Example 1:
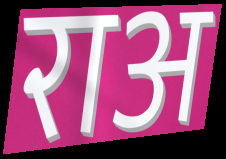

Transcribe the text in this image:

राअ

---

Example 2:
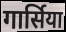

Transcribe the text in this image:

गार्सिया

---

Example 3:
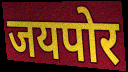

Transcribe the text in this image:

जयपोर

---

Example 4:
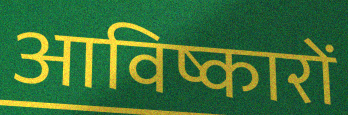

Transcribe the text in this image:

आविष्‍कारों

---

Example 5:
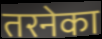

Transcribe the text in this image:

तरनेका